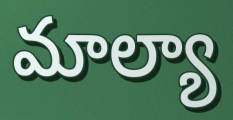
మాల్యా